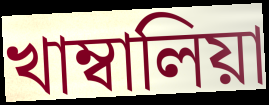
খাম্বালিয়া